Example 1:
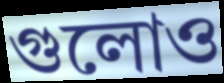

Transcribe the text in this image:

গুলোও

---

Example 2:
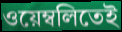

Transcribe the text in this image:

ওয়েম্বলিতেই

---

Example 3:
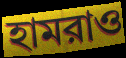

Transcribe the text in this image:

হামরাও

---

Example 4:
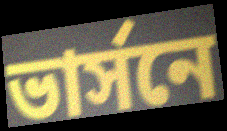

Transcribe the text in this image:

ভার্সনে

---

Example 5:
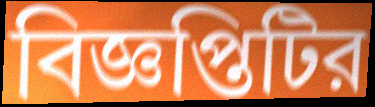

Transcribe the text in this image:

বিজ্ঞপ্তিটির